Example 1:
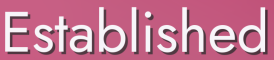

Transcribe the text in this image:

Established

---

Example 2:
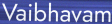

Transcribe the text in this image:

Vaibhavam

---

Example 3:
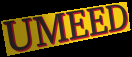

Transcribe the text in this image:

UMEED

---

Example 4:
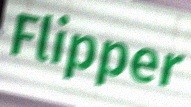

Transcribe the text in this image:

Flipper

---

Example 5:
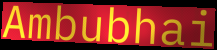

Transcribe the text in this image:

Ambubhai